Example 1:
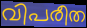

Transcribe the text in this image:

വിപരീത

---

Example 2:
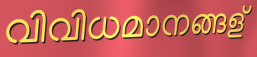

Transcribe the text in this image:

വിവിധമാനങ്ങള്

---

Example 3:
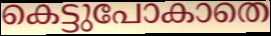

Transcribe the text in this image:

കെട്ടുപോകാതെ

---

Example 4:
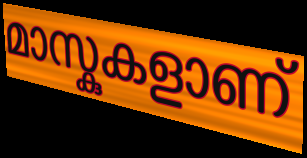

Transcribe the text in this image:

മാസ്കുകളാണ്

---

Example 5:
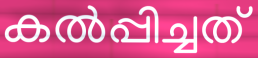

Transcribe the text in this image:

കൽപ്പിച്ചത്